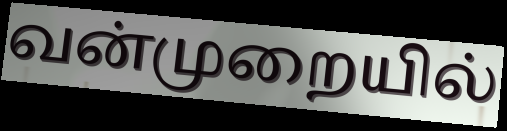
வன்முறையில்